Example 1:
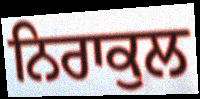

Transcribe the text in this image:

ਨਿਰਾਕੁਲ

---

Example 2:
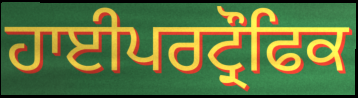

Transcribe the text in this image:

ਹਾਈਪਰਟ੍ਰੌਫਿਕ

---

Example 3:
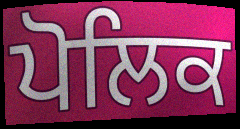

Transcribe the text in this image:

ਪੋਲਿਕ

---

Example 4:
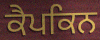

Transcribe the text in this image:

ਕੈਪਕਿਨ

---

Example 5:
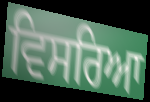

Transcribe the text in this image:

ਵਿਸਰਿਆ